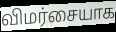
விமர்சையாக